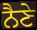
ਨੈਣੇ